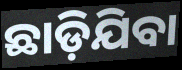
ଛାଡ଼ିଯିବା